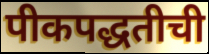
पीकपद्धतीची